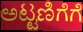
ಅಟ್ಟಣಿಗೆಗೆ